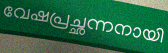
വേഷപ്രച്ഛന്നനായി